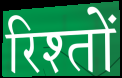
रिश्तों